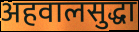
अहवालसुद्धा